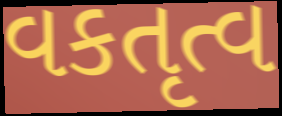
વકતૃત્વ